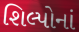
શિલ્પોનાં